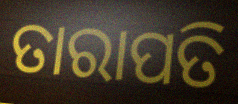
ତାରାପତି